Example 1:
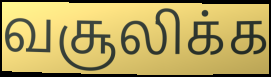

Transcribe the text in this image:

வசூலிக்க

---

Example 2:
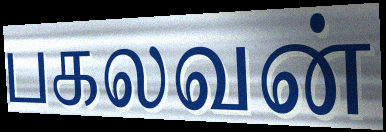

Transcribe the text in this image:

பகலவன்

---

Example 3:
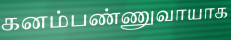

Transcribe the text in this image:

கனம்பண்ணுவாயாக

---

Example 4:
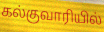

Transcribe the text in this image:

கல்குவாரியில்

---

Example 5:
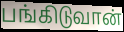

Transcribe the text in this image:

பங்கிடுவான்